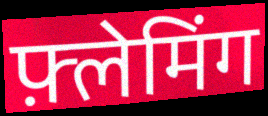
फ़्लेमिंग